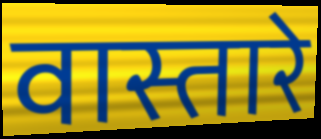
वास्तारे